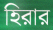
হিরার